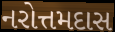
નરોત્તમદાસ